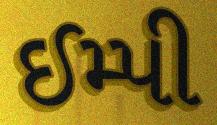
ઈમ્પી